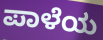
ಪಾಳೆಯ